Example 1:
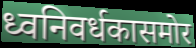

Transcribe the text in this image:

ध्वनिवर्धकासमोर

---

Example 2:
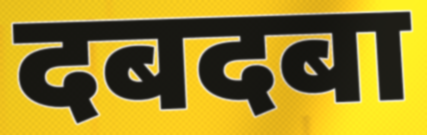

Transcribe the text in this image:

दबदबा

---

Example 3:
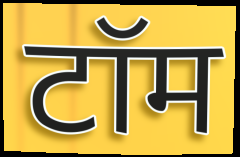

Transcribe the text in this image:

टॉम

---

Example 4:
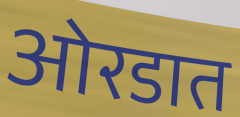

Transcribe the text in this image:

ओरडात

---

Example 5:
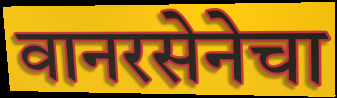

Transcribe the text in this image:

वानरसेनेचा